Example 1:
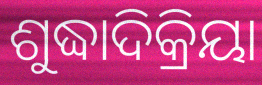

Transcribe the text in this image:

ଶୁଦ୍ଧାଦିକ୍ରିୟା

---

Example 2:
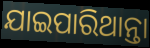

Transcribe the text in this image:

ଯାଇପାରିଥାନ୍ତା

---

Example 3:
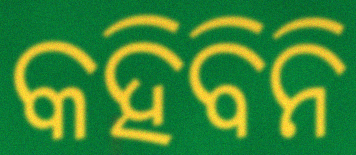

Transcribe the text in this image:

କହିବିନି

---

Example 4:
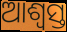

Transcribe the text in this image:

ଆଶ୍ବସ୍ତ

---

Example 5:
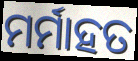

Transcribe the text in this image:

ମର୍ମାହତ